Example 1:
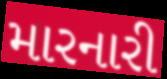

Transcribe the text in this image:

મારનારી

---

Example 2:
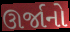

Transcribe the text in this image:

ઊર્જાનો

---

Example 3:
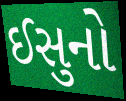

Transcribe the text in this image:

ઈસુનો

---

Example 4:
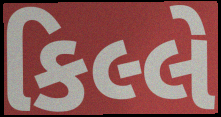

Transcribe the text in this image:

કિલ્લે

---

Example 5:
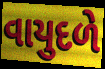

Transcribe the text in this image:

વાયુદળે